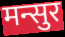
मन्सुर